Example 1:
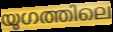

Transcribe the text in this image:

യുഗത്തിലെ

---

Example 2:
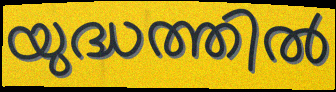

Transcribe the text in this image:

യുദ്ധത്തിൽ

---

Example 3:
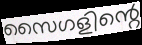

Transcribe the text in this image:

സൈഗളിന്റെ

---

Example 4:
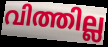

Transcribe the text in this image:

വിത്തില്ല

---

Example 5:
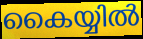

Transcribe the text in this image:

കൈയ്യിൽ